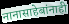
नानासाहेबांनाही